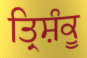
ਤ੍ਰਿਸ਼ੰਕੂ